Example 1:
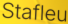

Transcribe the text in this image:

Stafleu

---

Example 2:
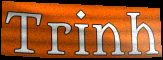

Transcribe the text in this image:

Trinh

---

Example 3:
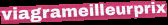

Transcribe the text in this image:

viagrameilleurprix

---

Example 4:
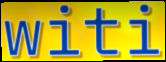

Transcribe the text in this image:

witi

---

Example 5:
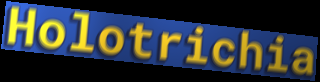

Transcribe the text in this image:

Holotrichia